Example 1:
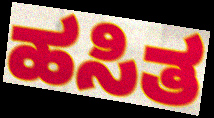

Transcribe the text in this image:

ಹಸಿತ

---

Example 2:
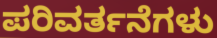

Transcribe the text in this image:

ಪರಿವರ್ತನೆಗಳು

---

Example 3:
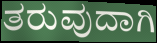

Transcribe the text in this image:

ತರುವುದಾಗಿ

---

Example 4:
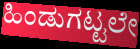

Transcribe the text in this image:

ಹಿಂಡುಗಟ್ಟಲೇ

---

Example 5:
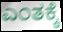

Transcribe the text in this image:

ಎಂತಕ್ಕೆ